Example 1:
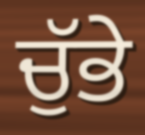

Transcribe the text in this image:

ਚੁੱਭੇ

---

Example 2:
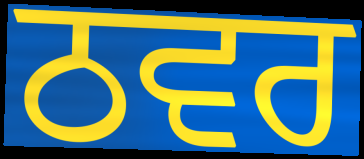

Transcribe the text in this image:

ਠਵਰ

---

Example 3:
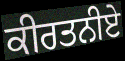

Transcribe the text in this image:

ਕੀਰਤਨੀਏ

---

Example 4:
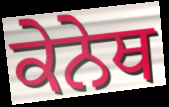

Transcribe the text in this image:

ਕੇਨੇਥ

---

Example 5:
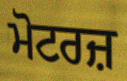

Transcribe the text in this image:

ਮੋਟਰਜ਼